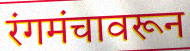
रंगमंचावरून